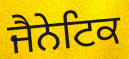
ਜੈਨੇਟਿਕ